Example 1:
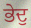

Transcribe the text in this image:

ਭੇਦੁ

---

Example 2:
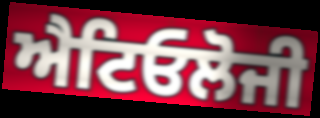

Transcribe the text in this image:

ਐਟਿਓਲੋਜੀ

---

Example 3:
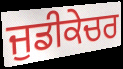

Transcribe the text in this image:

ਜੁਡੀਕੇਚਰ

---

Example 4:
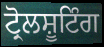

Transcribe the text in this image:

ਟ੍ਰੋਲਸ਼ੂਟਿੰਗ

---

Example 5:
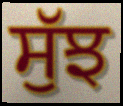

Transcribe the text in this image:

ਸੁੱਝ